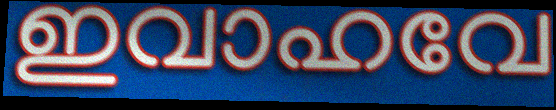
ഇവാഹവേ